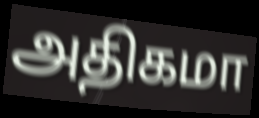
அதிகமா